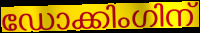
ഡോക്കിംഗിന്